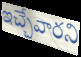
ఇచ్చేవారని